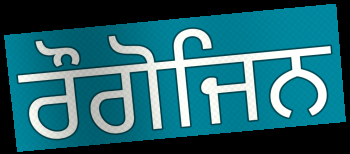
ਰੌਗੋਜਿਨ